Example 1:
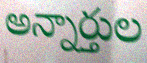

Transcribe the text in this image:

అన్నార్తుల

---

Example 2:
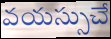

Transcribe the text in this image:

వయస్సుచే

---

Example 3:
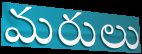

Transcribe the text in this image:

మరులు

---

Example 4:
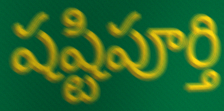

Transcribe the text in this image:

షష్టిపూర్తి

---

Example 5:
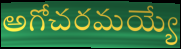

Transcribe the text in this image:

అగోచరమయ్యే